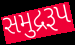
સમુદ્રરૂપ